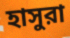
হাসুরা